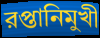
রপ্তানিমুখী